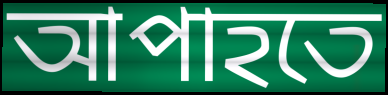
আপাহতে